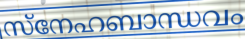
സ്നേഹബാന്ധവം